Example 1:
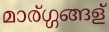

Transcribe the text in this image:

മാര്ഗ്ഗങ്ങള്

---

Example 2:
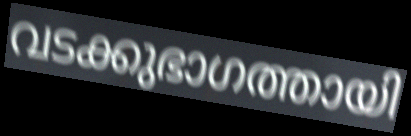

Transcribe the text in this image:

വടക്കുഭാഗത്തായി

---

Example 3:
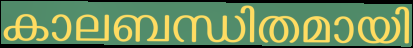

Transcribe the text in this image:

കാലബന്ധിതമായി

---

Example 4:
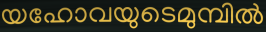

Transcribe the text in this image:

യഹോവയുടെമുമ്പിൽ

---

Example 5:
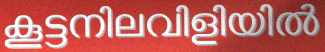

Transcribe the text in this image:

കൂട്ടനിലവിളിയിൽ